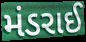
મંડરાઈ